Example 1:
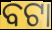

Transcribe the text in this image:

ବଟା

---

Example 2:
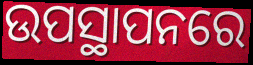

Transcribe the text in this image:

ଉପସ୍ଥାପନରେ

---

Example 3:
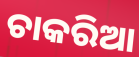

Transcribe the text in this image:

ଚାକରିଆ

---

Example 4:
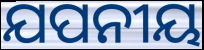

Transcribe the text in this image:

ଯପନୀୟ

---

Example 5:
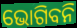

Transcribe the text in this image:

ଭୋଗିବନି